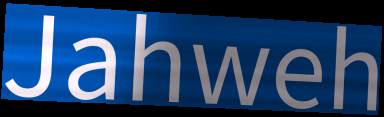
Jahweh